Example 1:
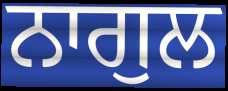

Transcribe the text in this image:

ਨਾਗੁਲ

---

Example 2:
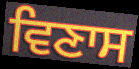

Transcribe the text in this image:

ਵਿਣਾਸ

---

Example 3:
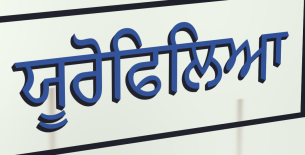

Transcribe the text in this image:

ਯੂਰੋਫਿਲਿਆ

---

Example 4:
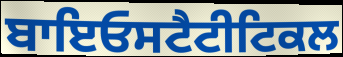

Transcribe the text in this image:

ਬਾਇਓਸਟੈਟੀਟਿਕਲ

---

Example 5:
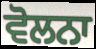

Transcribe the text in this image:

ਵੋਲਨਾ